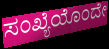
ಸಂಖ್ಯೆಯೊಂದೇ